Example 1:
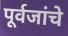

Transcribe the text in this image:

पूर्वजांचे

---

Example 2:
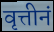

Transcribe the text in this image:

वृत्तीनं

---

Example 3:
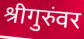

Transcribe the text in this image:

श्रीगुरुंवर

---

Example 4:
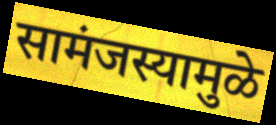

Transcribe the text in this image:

सामंजस्यामुळे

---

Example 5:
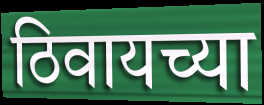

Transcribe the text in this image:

ठिवायच्या